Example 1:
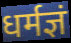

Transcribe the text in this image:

धर्मज्ञं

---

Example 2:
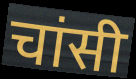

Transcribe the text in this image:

चांसी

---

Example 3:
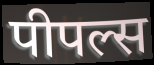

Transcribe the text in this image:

पीपल्स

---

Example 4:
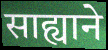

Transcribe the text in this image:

साह्याने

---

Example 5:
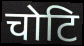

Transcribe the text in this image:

चोटि